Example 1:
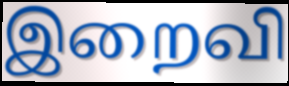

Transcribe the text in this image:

இறைவி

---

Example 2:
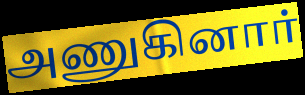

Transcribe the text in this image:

அணுகினார்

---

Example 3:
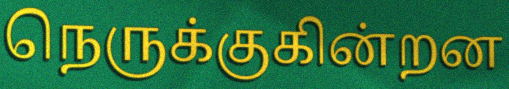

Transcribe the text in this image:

நெருக்குகின்றன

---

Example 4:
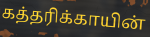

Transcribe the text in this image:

கத்தரிக்காயின்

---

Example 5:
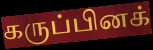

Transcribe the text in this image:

கருப்பினக்